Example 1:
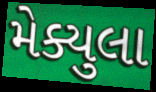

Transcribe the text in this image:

મેક્યુલા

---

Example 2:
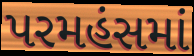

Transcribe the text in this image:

પરમહંસમાં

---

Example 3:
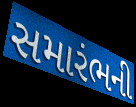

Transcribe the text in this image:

સમારંભની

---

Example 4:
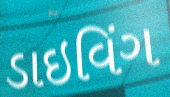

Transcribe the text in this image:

ડાઇવિંગ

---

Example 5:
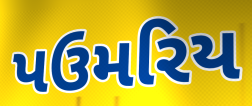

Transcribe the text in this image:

પઉમરિય